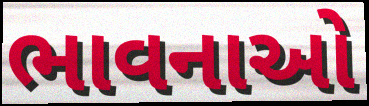
ભાવનાઓ